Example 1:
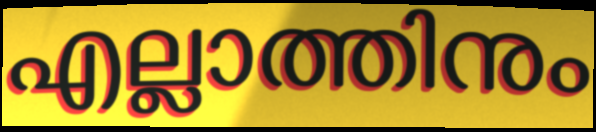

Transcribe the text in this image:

എല്ലാത്തിനും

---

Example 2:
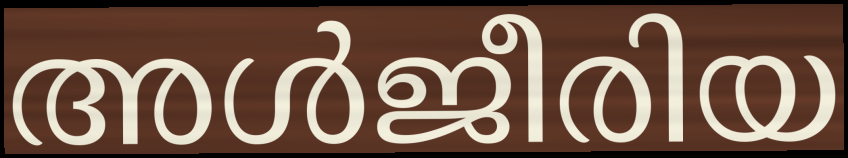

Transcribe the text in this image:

അൾജീരിയ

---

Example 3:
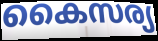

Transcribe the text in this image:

കൈസര്യ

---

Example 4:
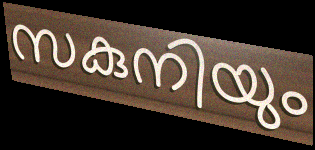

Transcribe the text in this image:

സകുനിയും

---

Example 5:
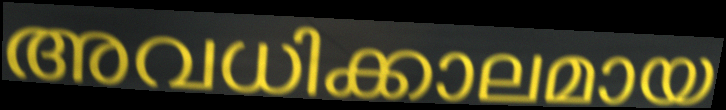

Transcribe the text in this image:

അവധിക്കാലമായ